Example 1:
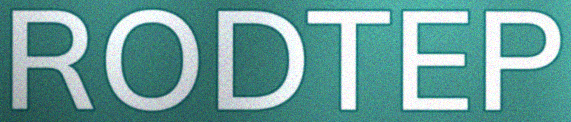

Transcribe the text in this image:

RODTEP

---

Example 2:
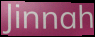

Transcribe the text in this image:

Jinnah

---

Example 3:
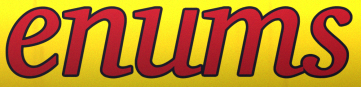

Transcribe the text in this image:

enums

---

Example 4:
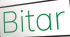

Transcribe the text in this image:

Bitar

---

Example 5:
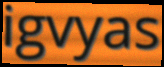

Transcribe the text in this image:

igvyas